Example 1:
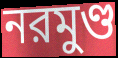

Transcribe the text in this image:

নরমুণ্ড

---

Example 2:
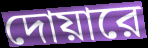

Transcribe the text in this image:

দোয়ারে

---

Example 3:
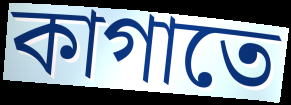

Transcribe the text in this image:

কাগাতে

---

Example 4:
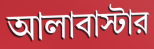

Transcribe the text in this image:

আলাবাস্টার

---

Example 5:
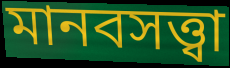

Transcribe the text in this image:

মানবসত্ত্বা